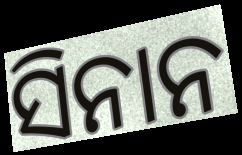
ସିନାନ